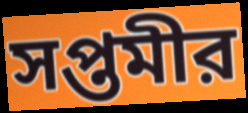
সপ্তমীর